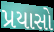
પ્રયાસો